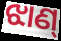
ଝାଣ୍